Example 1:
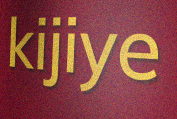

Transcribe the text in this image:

kijiye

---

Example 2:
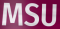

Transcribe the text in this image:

MSU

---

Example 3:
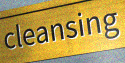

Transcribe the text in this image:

cleansing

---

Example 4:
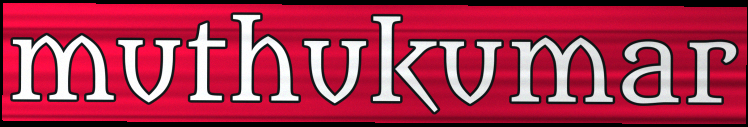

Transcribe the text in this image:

muthukumar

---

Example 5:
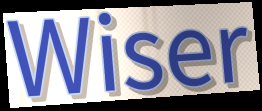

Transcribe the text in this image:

Wiser